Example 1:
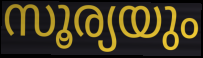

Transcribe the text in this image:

സൂര്യയും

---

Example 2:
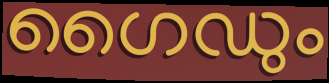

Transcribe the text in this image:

ഗൈഡും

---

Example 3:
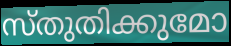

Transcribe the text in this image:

സ്തുതിക്കുമോ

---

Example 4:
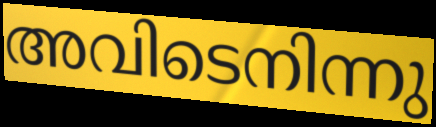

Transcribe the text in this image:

അവിടെനിന്നു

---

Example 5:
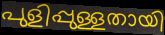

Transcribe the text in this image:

പുളിപ്പുള്ളതായി